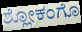
ಶ್ಲೋಕಂಗೊ